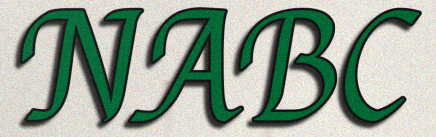
NABC